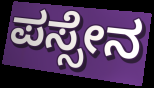
ಪಸ್ಸೇನ